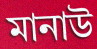
মানাউ